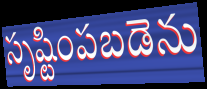
సృష్టింపబడెను